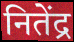
नितेंद्र